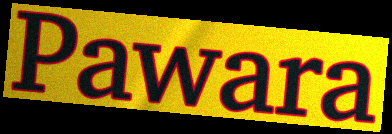
Pawara